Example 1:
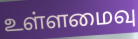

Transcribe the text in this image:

உள்ளமைவு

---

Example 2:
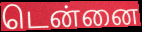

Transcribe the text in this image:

டென்னை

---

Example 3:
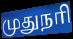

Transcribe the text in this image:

முதுநரி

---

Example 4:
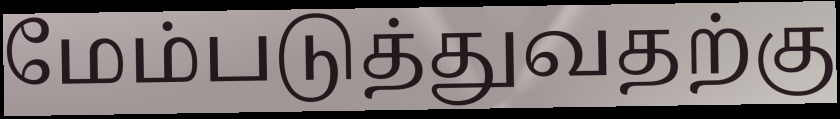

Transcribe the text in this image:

மேம்படுத்துவதற்கு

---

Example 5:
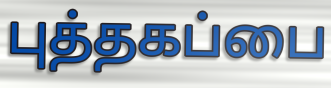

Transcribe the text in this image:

புத்தகப்பை